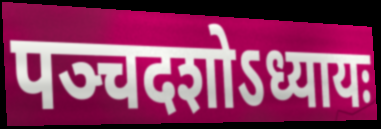
पञ्चदशोऽध्यायः